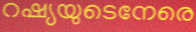
റഷ്യയുടെനേരെ